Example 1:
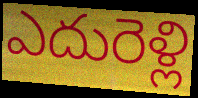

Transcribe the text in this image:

ఎదురెళ్లి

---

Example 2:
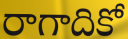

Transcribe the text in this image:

రాగాదికో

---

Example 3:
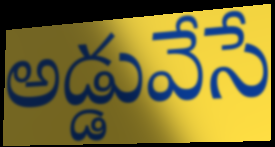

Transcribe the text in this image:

అడ్డువేసే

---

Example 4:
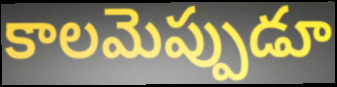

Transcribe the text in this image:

కాలమెప్పుడూ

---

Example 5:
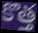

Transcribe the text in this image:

కొత్త